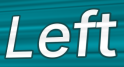
Left